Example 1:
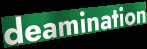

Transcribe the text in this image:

deamination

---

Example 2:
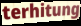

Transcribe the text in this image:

terhitung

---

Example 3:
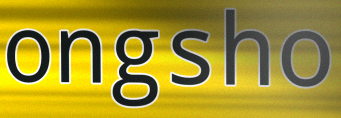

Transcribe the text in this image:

ongsho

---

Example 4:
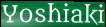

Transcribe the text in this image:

Yoshiaki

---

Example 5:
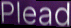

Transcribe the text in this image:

Plead